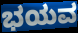
ಭಯವ